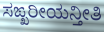
ಸಙ್ಖರೀಯನ್ತೀತಿ